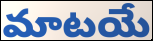
మాటయే